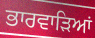
ਭਾਰਵਾੜਿਆਂ